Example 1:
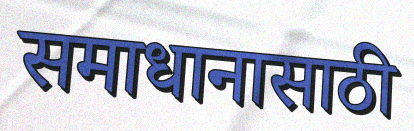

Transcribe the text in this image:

समाधानासाठी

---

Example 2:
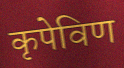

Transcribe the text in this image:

कृपेविण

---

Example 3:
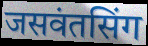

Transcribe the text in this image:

जसवंतसिंग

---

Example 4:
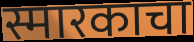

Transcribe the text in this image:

स्मारकाचा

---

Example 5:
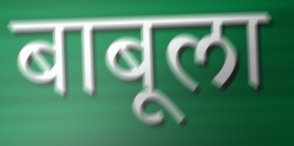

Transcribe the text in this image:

बाबूला